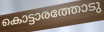
കൊട്ടാരത്തോടു